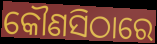
କୌଣସିଠାରେ